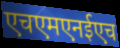
एचएमएनईएच